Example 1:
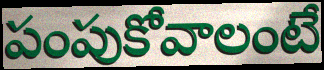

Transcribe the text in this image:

పంపుకోవాలంటే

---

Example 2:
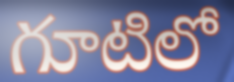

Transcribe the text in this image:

గూటిలో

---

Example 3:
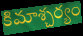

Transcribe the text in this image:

కిమాశ్చర్యం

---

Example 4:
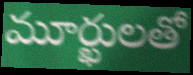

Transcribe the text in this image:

మూర్ఖులతో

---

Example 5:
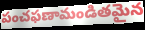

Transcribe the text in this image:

పంచఫణామండితమైన